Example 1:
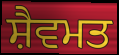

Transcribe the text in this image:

ਸ਼ੈਵਮਤ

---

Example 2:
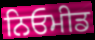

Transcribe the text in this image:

ਨਿਓਮੀਡ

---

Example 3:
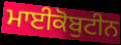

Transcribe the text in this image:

ਮਾਈਕੋਬੁਟੀਨ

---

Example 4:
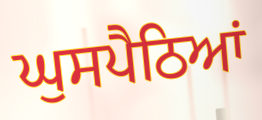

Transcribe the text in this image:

ਘੁਸਪੈਠਿਆਂ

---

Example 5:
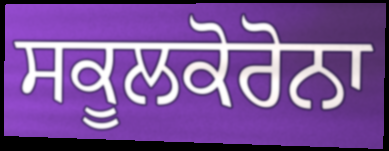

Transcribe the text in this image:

ਸਕੂਲਕੋਰੋਨਾ